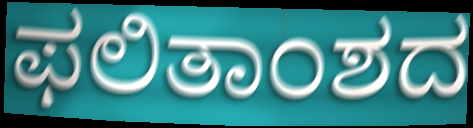
ಫಲಿತಾಂಶದ